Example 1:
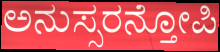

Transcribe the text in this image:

ಅನುಸ್ಸರನ್ತೋಪಿ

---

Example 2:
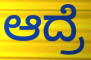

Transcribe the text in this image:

ಆದ್ರೆ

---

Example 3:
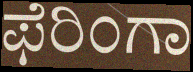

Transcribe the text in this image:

ಫೆರಿಂಗಾ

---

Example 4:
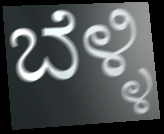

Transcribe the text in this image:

ಬೆಳ್ಳಿ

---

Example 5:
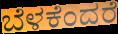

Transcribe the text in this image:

ಬೆಳಕೆಂದರೆ